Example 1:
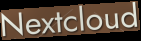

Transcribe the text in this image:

Nextcloud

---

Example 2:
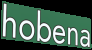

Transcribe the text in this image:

hobena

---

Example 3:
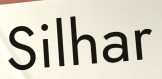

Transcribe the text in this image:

Silhar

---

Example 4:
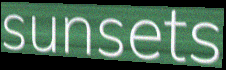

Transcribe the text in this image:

sunsets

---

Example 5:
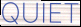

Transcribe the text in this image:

QUIET